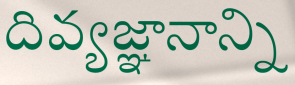
దివ్యజ్ఞానాన్ని